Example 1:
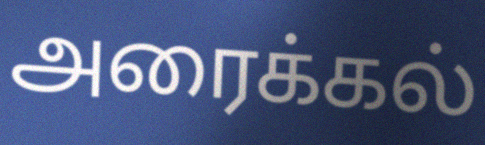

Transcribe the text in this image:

அரைக்கல்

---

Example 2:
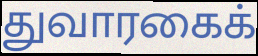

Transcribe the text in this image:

துவாரகைக்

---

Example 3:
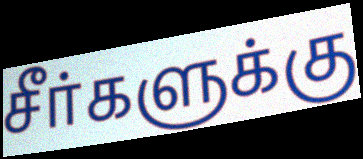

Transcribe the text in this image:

சீர்களுக்கு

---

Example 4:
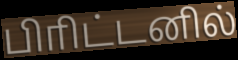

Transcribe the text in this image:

பிரிட்டனில்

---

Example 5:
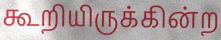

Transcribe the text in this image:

கூறியிருக்கின்ற